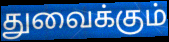
துவைக்கும்